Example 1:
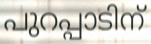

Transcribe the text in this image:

പുറപ്പാടിന്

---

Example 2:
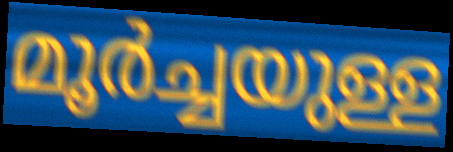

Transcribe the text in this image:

മൂർച്ചയുള്ള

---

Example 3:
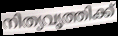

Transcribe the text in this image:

നിത്യവൃത്തിക്ക്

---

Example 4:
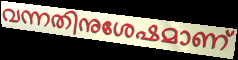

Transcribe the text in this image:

വന്നതിനുശേഷമാണ്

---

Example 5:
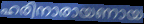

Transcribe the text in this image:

ഹരിനാരായണായ